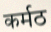
कर्मठ